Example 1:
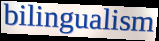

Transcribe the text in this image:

bilingualism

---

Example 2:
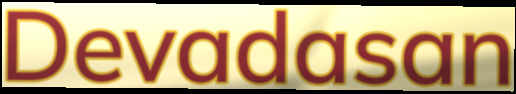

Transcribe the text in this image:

Devadasan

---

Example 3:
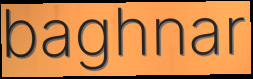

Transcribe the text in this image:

baghnar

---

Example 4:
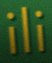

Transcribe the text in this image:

ili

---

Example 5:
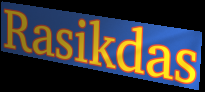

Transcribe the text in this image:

Rasikdas